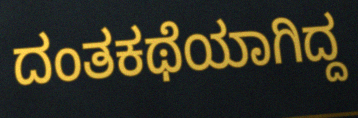
ದಂತಕಥೆಯಾಗಿದ್ದ